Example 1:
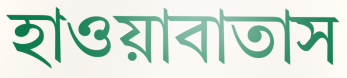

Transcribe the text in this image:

হাওয়াবাতাস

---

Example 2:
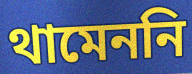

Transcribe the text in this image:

থামেননি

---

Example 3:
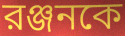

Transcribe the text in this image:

রঞ্জনকে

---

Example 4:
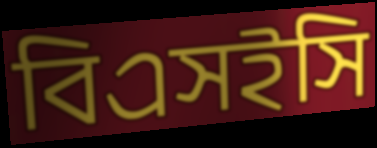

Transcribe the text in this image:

বিএসইসি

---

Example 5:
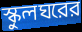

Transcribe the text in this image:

স্কুলঘরের